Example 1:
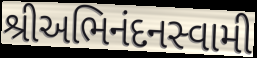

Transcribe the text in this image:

શ્રીઅભિનંદનસ્વામી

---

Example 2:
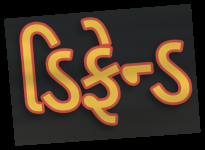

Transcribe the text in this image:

ડિફેન્ડ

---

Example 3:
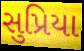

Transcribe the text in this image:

સુપ્રિયા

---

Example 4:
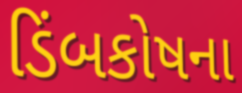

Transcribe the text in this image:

ડિંબકોષના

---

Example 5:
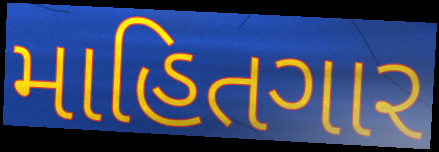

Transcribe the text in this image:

માહિતગાર